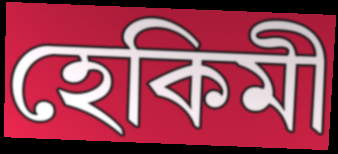
হেকিমী